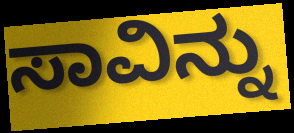
ಸಾವಿನ್ನು